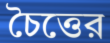
চৈত্তের